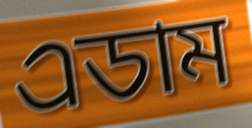
এডাম